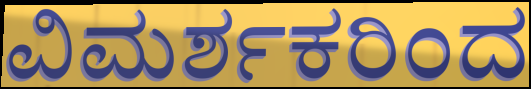
ವಿಮರ್ಶಕರಿಂದ